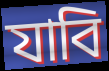
যাবি